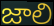
జాలి